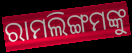
ରାମଲିଙ୍ଗମଙ୍କୁ